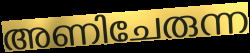
അണിചേരുന്ന